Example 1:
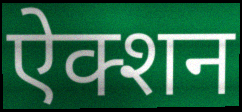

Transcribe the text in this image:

ऐक्शन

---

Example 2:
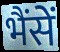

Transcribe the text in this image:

भैंसें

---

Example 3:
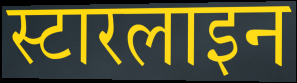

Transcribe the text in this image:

स्टारलाइन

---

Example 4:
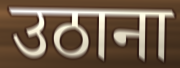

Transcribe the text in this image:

उठाना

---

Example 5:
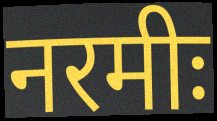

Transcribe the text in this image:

नरमीः